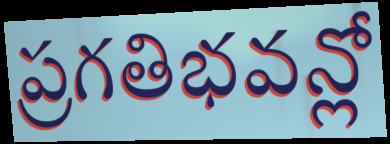
ప్రగతిభవన్లో